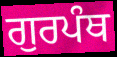
ਗੁਰਪੰਥ